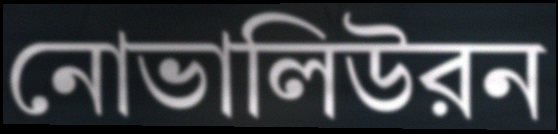
নোভালিউরন